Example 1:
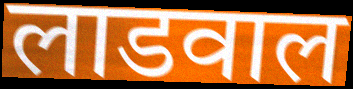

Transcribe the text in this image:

लाडवाल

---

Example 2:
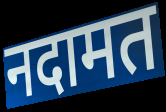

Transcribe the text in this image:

नदामत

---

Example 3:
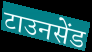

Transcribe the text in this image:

टाउनसेंड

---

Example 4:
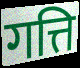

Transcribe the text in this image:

गत्ति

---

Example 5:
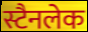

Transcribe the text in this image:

स्टैनलेक